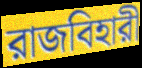
রাজবিহারী